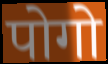
पोगो